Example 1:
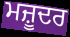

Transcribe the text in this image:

ਮਜ਼ੂਦਰ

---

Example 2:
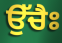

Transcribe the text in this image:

ਉੱਚੈਃ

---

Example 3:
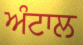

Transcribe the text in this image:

ਅੰਟਾਲ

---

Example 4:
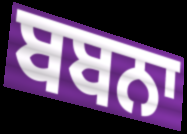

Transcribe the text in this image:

ਬਬਨਾ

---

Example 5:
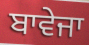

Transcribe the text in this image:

ਬਾਵੇਜਾ